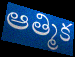
ఆత్మిక